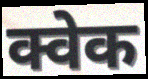
क्वेक